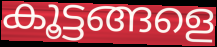
കൂട്ടങ്ങളെ